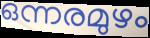
ഒന്നരമുഴം